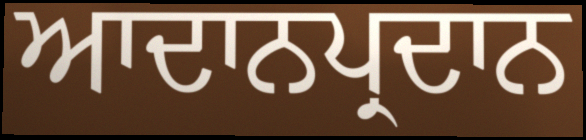
ਆਦਾਨਪ੍ਰਦਾਨ